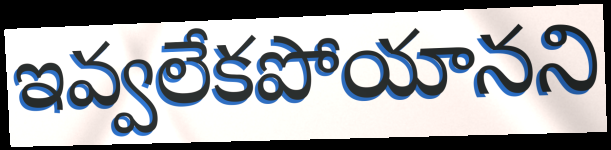
ఇవ్వలేకపోయానని